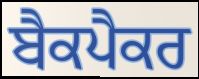
ਬੈਕਪੈਕਰ